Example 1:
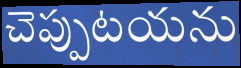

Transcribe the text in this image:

చెప్పుటయను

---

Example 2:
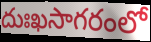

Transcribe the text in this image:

దుఃఖసాగరంలో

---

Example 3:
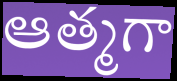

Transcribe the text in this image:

ఆత్మగా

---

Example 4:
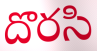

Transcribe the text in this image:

దొరసి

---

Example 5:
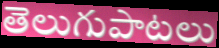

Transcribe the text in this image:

తెలుగుపాటలు